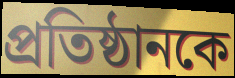
প্রতিষ্ঠানকে